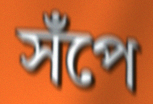
সঁপে